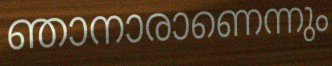
ഞാനാരാണെന്നും